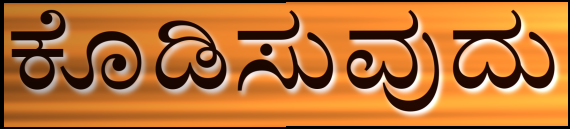
ಕೊಡಿಸುವುದು